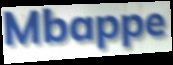
Mbappe